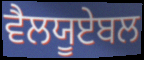
ਵੈਲਯੂਏਬਲ